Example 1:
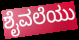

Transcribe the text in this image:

ಶೈವಲೆಯು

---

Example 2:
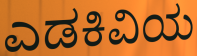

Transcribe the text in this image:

ಎಡಕಿವಿಯ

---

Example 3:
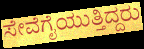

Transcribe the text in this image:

ಸೇವೆಗೈಯುತ್ತಿದ್ದರು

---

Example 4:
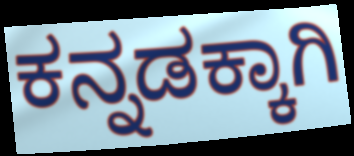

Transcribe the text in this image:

ಕನ್ನಡಕ್ಕಾಗಿ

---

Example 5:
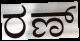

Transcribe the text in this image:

ರಣ್